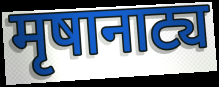
मृषानाट्य